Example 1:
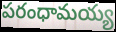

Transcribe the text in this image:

పరంధామయ్య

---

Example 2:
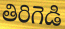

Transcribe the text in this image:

తిరిగెడి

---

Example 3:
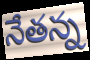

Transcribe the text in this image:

నేతన్న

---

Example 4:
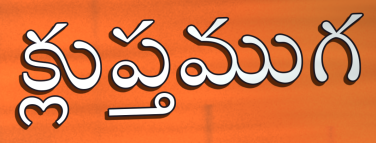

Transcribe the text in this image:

క్లుప్తముగ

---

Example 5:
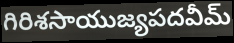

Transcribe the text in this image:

గిరిశసాయుజ్యపదవీమ్